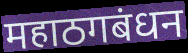
महाठगबंधन